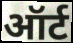
ऑर्ट